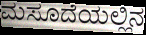
ಮಸೂದೆಯಲ್ಲಿನ